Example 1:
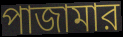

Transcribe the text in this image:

পাজামার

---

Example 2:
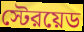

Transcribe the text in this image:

স্টেরয়েড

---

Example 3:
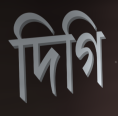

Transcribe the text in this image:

দিগি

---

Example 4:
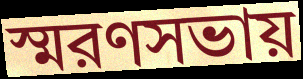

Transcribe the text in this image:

স্মরণসভায়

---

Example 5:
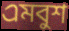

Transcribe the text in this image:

এমবুশ